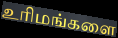
உரிமங்களை